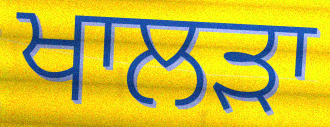
ਖਾਲੜਾ